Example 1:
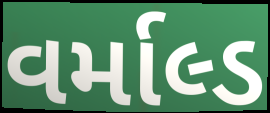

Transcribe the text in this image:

વર્માલ્ડ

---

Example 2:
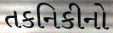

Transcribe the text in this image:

તકનિકીનો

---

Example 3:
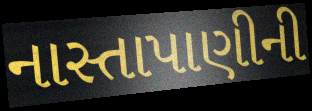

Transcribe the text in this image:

નાસ્તાપાણીની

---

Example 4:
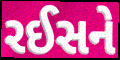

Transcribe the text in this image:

રઈસને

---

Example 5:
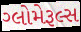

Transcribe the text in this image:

ગ્લોમેરૂલ્સ